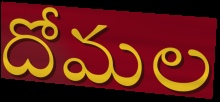
దోమల